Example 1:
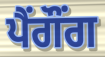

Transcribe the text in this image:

ਪੈਂਗੌਂਗ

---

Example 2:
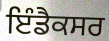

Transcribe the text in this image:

ਇੰਡੈਕਸਰ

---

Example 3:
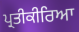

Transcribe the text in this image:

ਪ੍ਰਤੀਕੀਰਿਆ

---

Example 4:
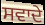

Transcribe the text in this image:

ਸਵਾਦੇ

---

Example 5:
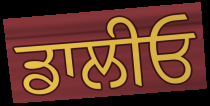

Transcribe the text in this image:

ਡਾਲੀਓ